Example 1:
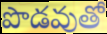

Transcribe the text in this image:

పొడవుతో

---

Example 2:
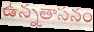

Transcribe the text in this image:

ఉన్నతాసనం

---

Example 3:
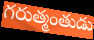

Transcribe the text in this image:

గరుత్మంతుడు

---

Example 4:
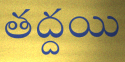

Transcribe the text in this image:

తద్దయి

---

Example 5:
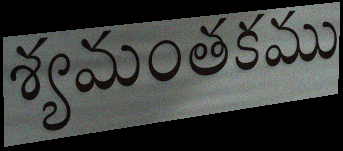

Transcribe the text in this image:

శ్యమంతకము